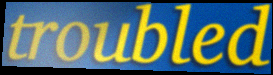
troubled